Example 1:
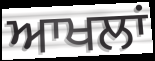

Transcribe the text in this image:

ਆਖਲਾਂ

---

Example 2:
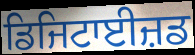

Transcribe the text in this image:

ਡਿਜਿਟਾਈਜ਼ਡ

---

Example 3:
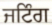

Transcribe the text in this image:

ਜਟਿੰਗ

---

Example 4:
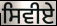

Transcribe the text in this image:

ਸਿਵੀਏ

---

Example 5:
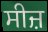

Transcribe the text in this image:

ਸੀਜ਼